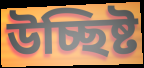
উচ্ছিষ্ট